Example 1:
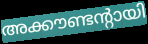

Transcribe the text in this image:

അക്കൗണ്ടന്റായി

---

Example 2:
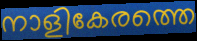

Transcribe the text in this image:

നാളികേരത്തെ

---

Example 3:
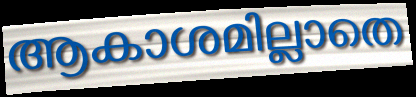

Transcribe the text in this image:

ആകാശമില്ലാതെ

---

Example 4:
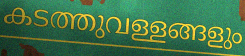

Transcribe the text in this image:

കടത്തുവള്ളങ്ങളും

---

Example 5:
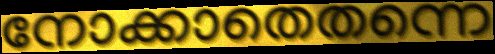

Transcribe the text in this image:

നോക്കാതെതന്നെ